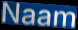
Naam